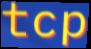
tcp